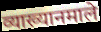
व्याख्यानमाले